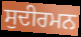
ਸੁਦੀਰਮਨ